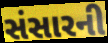
સંસારની